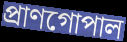
প্রাণগোপাল